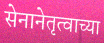
सेनानेतृत्वाच्या